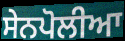
ਸੇਨਪੋਲੀਆ